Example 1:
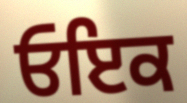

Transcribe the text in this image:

ਓਇਕ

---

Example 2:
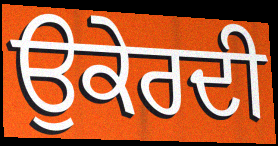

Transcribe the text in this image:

ਉਕੇਰਦੀ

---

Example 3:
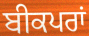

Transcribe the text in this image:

ਬੀਕਪਰਾਂ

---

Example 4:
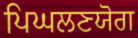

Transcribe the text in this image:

ਪਿਘਲਣਯੋਗ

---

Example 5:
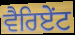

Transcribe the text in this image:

ਵੈਰਿਏਂਟ